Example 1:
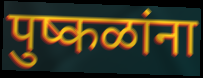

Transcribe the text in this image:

पुष्कळांना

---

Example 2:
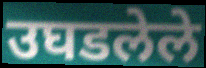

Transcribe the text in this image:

उघडलेले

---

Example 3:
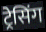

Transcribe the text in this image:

ट्रेसिंग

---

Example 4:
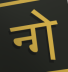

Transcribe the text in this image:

न्गे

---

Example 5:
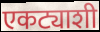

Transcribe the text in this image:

एकट्याशी